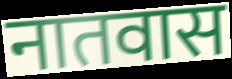
नातवास